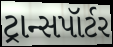
ટ્રાન્સપૉર્ટર